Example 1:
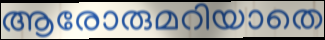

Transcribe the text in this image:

ആരോരുമറിയാതെ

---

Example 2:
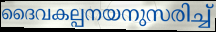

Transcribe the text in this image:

ദൈവകല്പനയനുസരിച്ച്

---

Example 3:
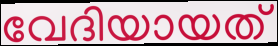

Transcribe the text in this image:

വേദിയായത്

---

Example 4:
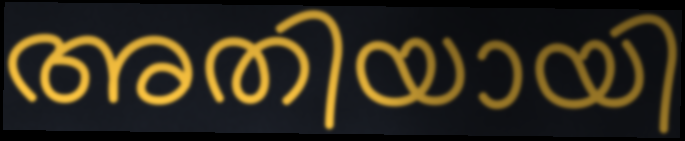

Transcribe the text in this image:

അതിയായി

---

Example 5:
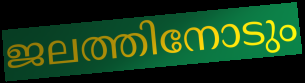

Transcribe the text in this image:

ജലത്തിനോടും